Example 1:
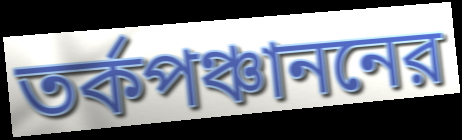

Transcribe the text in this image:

তর্কপঞ্চাননের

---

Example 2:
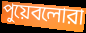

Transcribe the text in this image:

পুয়েবলোরা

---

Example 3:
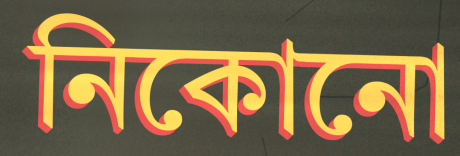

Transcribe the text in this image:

নিকোনো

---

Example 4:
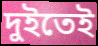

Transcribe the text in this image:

দুইতেই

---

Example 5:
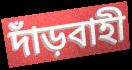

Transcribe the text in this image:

দাঁড়বাহী